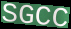
SGCC